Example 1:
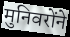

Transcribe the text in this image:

मुनिवरोंने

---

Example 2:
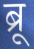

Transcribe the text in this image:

ब्रू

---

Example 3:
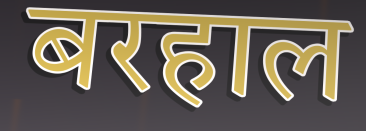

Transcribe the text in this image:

बरहाल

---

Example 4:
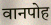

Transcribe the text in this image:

वानपोह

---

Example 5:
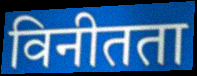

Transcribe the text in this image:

विनीतता